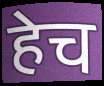
हेच